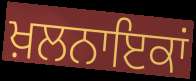
ਖ਼ਲਨਾਇਕਾਂ